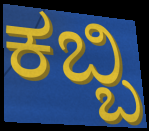
ಕಬ್ಬಿ